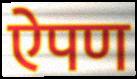
ऐपण